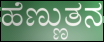
ಹೆಣ್ಣುತನ